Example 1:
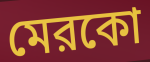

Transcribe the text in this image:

মেরকো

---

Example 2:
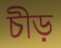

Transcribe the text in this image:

চীড়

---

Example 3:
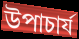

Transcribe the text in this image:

উপাচার্য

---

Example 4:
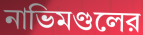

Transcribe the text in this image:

নাভিমণ্ডলের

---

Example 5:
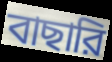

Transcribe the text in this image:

বাছারি